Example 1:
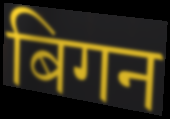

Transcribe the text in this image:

बिगन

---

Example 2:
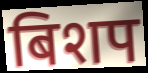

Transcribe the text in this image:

बिशप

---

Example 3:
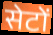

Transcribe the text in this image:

सेटों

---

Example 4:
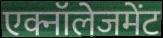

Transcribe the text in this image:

एक्नॉलेजमेंट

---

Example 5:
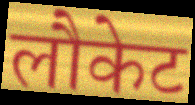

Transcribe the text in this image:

लौकेट